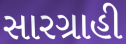
સારગ્રાહી